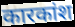
कारकांश